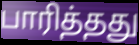
பாரித்தது